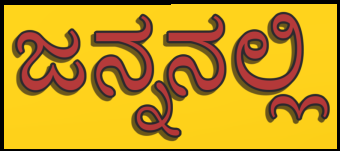
ಜನ್ನನಲ್ಲಿ